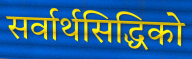
सर्वार्थसिद्धिको